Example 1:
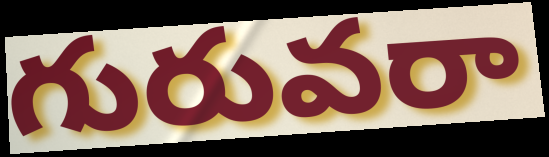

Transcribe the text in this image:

గురువరా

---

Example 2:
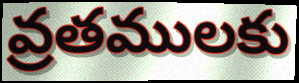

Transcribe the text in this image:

వ్రతములకు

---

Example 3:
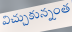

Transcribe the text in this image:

విచ్చుకున్నంత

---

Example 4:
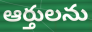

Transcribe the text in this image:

ఆర్తులను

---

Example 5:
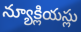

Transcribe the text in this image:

న్యూక్లియస్లు